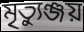
মৃত্যুঞ্জয়